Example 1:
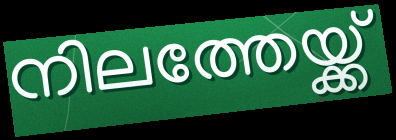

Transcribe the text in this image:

നിലത്തേയ്ക്ക്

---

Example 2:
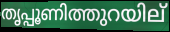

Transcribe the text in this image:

തൃപ്പൂണിത്തുറയില്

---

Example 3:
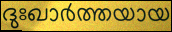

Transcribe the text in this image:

ദുഃഖാർത്തയായ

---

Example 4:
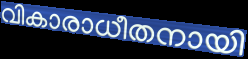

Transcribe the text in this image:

വികാരാധീതനായി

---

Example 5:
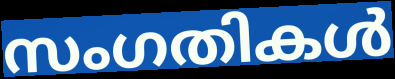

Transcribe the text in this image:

സംഗതികൾ